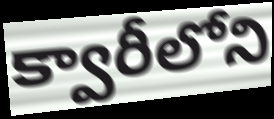
క్వారీలోని